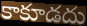
కాకూడదు